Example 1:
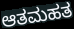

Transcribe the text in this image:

ಆತಮಹತ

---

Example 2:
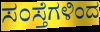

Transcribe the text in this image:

ಸಂಸ್ತೆಗಳಿಂದ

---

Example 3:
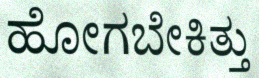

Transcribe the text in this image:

ಹೋಗಬೇಕಿತ್ತು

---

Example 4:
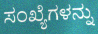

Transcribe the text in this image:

ಸಂಖ್ಯೆಗಳನ್ನು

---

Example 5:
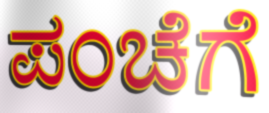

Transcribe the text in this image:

ಪಂಚೆಗೆ